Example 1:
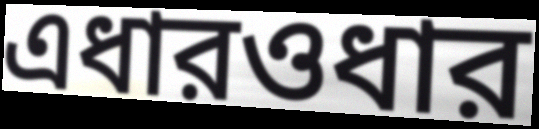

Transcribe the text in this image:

এধারওধার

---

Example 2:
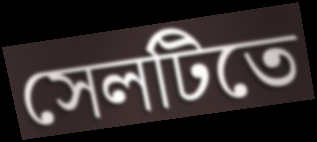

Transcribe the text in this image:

সেলটিতে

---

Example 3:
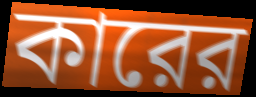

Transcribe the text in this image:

কারের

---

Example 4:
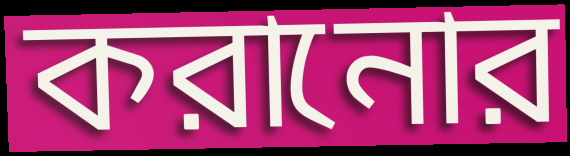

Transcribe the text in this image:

করানোর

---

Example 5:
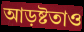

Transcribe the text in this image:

আড়ষ্টতাও